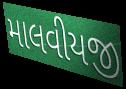
માલવીયજી